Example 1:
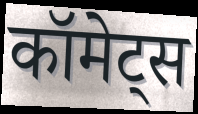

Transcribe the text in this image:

कॉमेट्स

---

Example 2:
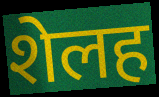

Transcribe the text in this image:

शेलह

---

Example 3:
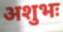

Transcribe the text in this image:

अशुभः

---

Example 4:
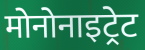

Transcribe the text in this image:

मोनोनाइट्रेट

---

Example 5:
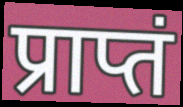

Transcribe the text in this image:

प्राप्तं